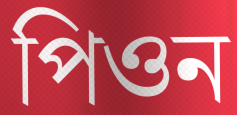
পিওন